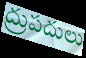
ద్రుపదులు